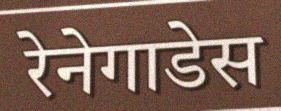
रेनेगाडेस